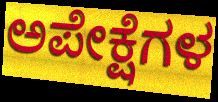
ಅಪೇಕ್ಷೆಗಳ